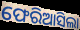
ଫେରିଆସିଲା